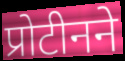
प्रोटीनने